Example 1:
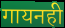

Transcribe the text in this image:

गायनही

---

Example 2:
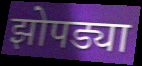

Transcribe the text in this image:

झोपड्या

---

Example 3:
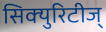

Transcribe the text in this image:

सिक्युरिटीज्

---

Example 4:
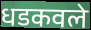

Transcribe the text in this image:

धडकवले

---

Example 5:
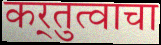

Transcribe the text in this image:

कर्तुत्वाचा